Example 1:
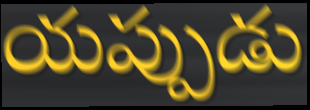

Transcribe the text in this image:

యప్పుడు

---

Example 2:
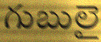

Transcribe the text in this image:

గుబులై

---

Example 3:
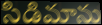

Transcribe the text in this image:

సిడిమాను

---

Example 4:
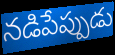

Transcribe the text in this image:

నడిపేప్పుడు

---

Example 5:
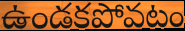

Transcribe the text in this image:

ఉండకపోవటం